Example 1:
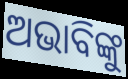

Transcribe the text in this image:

ଅଭାବିଙ୍କୁ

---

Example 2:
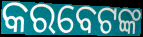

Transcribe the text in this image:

କରବେଟଙ୍କ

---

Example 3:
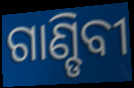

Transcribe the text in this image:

ଗାଣ୍ଡିବୀ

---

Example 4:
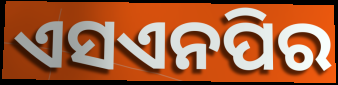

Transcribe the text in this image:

ଏସଏନପିର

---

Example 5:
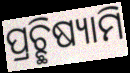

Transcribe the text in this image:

ପ୍ରଚ୍ଛିଷ୍ୟାମି